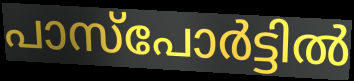
പാസ്പോർട്ടിൽ